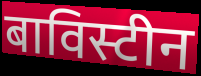
बाविस्टीन